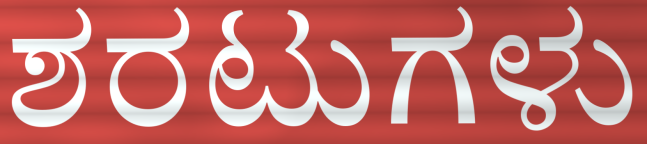
ಶರಟುಗಳು